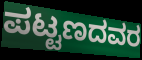
ಪಟ್ಟಣದವರ